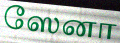
ஸேனா